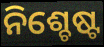
ନିଶ୍ଚେଷ୍ଟ